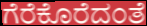
ಗೆರೆಕೊರೆದಂತೆ